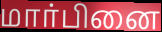
மார்பினை